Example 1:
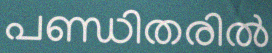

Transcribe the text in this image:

പണ്ഡിതരിൽ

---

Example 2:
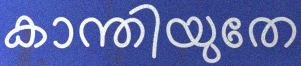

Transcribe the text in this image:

കാന്തിയുതേ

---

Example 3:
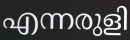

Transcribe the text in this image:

എന്നരുളി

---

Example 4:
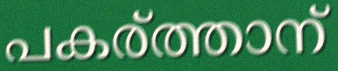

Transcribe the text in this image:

പകര്ത്താന്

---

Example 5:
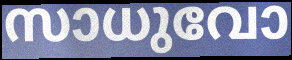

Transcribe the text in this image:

സാധുവോ